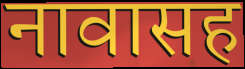
नावासह